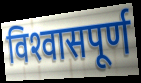
विश्वासपूर्ण